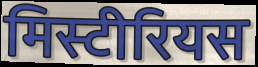
मिस्टीरियस